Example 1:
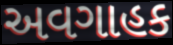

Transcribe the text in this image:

અવગાહક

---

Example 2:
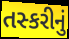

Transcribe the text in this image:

તસ્કરીનું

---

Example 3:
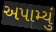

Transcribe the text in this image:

અપામ્યું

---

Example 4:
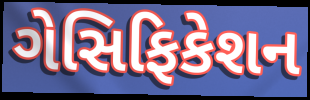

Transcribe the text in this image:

ગેસિફિકેશન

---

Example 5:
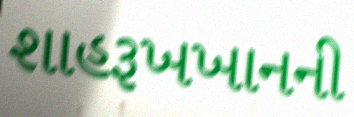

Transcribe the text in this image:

શાહરૂખખાનની